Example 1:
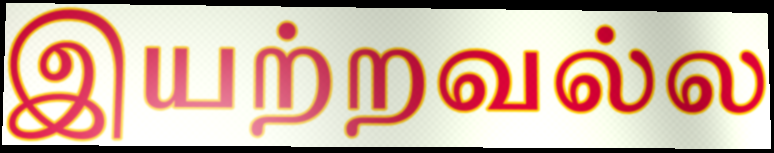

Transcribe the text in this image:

இயற்றவல்ல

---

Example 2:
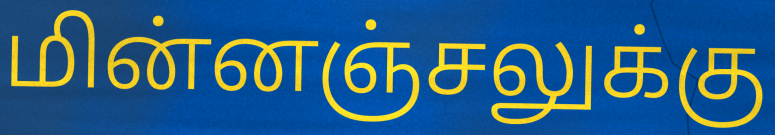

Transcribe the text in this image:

மின்னஞ்சலுக்கு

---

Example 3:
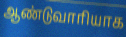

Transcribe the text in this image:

ஆண்டுவாரியாக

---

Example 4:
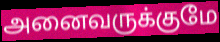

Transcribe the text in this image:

அனைவருக்குமே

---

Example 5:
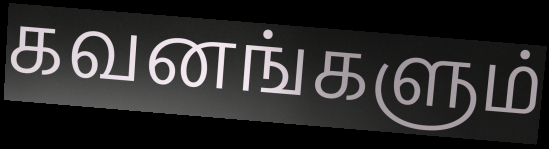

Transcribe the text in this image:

கவனங்களும்